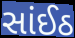
સાંઈઠ